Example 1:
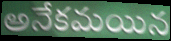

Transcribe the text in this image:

అనేకమయిన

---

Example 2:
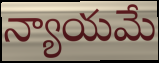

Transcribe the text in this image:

న్యాయమే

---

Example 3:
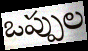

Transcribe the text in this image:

ఒప్పుల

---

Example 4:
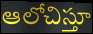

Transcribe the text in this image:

ఆలోచిస్తూ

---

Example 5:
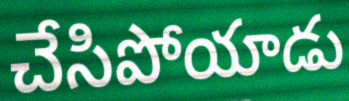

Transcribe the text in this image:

చేసిపోయాడు